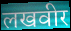
लखवीर